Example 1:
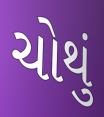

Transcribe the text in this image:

ચોથું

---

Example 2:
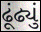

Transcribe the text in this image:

ઢૂંઢ્યું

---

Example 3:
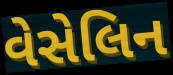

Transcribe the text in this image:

વેસેલિન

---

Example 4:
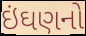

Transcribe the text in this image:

ઇંઘણનો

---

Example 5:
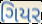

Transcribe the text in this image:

ગિયર